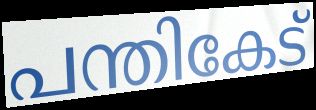
പന്തികേട്